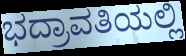
ಭದ್ರಾವತಿಯಲ್ಲಿ